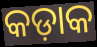
କଡ଼ାକ